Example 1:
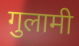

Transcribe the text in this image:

गुलामी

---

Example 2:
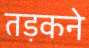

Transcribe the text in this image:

तड़कने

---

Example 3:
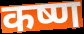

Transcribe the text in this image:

कष्ण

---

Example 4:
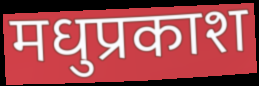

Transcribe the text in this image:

मधुप्रकाश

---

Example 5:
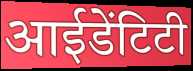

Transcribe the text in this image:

आईडेंटिटी